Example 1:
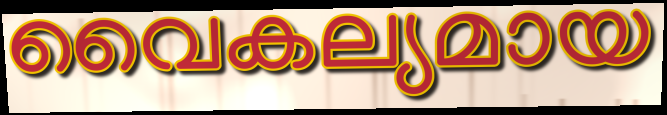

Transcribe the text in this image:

വൈകല്യമായ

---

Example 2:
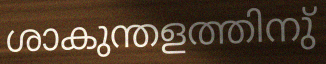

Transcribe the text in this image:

ശാകുന്തളത്തിനു്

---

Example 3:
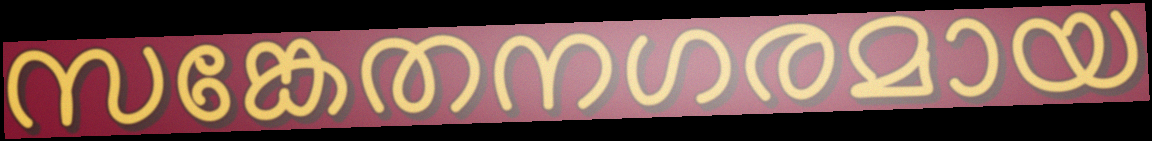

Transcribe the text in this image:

സങ്കേതനഗരമായ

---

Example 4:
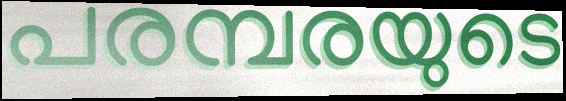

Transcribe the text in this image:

പരമ്പരയുടെ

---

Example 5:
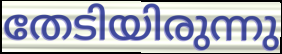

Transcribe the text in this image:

തേടിയിരുന്നു